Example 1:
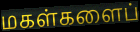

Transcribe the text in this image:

மகள்களைப்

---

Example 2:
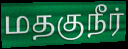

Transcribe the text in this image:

மதகுநீர்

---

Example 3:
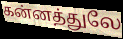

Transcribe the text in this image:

கன்னத்துலே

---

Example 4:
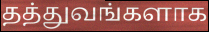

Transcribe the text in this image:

தத்துவங்களாக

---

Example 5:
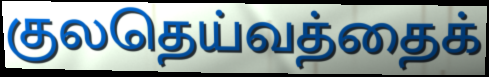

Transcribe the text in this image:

குலதெய்வத்தைக்